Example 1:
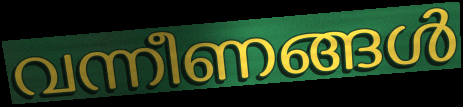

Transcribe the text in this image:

വന്നീണങ്ങൾ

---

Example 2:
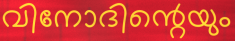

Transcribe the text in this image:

വിനോദിന്റെയും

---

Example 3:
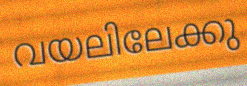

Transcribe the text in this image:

വയലിലേക്കു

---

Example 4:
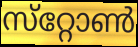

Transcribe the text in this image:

സ്‌റ്റോൺ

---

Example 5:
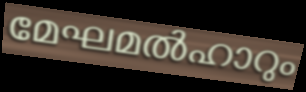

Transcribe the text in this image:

മേഘമൽഹാറും